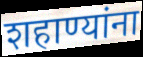
शहाण्यांना